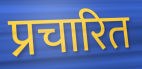
प्रचारित